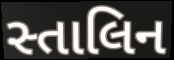
સ્તાલિન